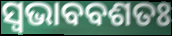
ସ୍ୱଭାବବଶତଃ